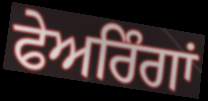
ਫੇਅਰਿੰਗਾਂ